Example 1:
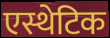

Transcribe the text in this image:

एस्थेटिक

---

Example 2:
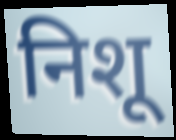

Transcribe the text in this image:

निशू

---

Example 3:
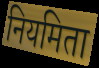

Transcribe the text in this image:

नियमिता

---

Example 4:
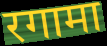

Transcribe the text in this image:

रगामा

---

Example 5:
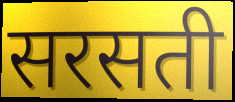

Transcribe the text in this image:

सरसती